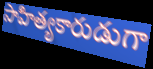
సాహిత్యకారుడుగా